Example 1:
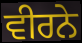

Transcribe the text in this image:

ਵੀਰਨੇ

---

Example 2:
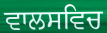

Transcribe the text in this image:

ਵਾਲਸਵਿਚ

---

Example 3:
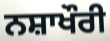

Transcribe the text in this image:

ਨਸ਼ਾਖੌਰੀ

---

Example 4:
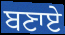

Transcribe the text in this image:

ਬਣਾਏ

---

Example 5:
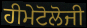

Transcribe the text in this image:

ਹੀਮੇਟੋਲੋਜੀ